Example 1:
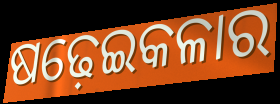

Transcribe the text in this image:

ଷଢ଼େଇକଳାର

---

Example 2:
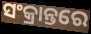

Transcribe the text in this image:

ସଂକ୍ରାନ୍ତରେ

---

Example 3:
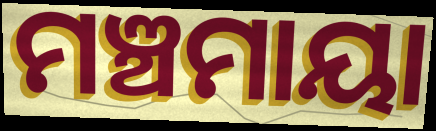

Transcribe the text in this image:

ମଞ୍ଚମାୟା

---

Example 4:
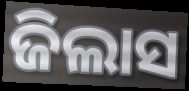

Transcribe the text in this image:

ଜିଲାସ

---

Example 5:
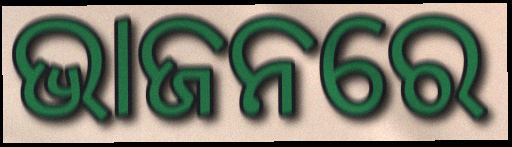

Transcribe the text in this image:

ଭାଜନରେ